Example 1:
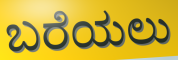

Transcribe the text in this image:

ಬರೆಯಲು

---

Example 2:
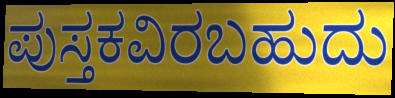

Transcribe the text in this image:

ಪುಸ್ತಕವಿರಬಹುದು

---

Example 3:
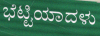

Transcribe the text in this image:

ಭೆಟ್ಟಿಯಾದಳು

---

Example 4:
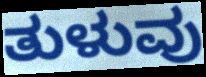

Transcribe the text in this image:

ತುಳುವು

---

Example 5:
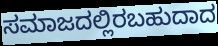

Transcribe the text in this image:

ಸಮಾಜದಲ್ಲಿರಬಹುದಾದ